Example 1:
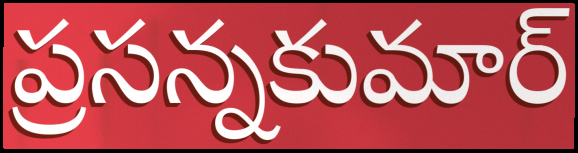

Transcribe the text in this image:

ప్రసన్నకుమార్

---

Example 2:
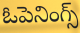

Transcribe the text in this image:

ఓపెనింగ్స్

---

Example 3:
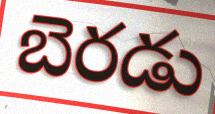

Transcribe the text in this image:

బెరడు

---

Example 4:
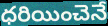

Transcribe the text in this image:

ధరియించెనే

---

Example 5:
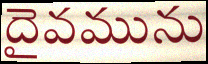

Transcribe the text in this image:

దైవమును